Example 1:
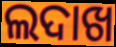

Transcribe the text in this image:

ଲଦାଖ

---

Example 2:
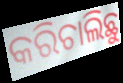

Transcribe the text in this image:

କରିଚାଲିଛୁ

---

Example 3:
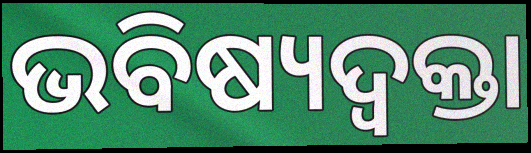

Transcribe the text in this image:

ଭବିଷ୍ୟଦ୍ବକ୍ତା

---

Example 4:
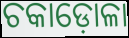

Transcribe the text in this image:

ଚକାଡ଼ୋଳା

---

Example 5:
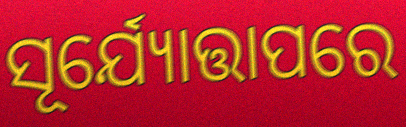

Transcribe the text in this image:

ସୂର୍ଯ୍ୟୋତ୍ତାପରେ